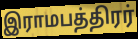
இராமபத்திரர்